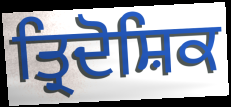
ਤ੍ਰਿਦੋਸ਼ਿਕ